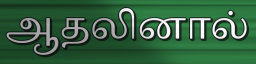
ஆதலினால்